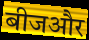
बीजऔर